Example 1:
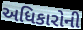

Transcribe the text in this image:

અધિકારોની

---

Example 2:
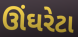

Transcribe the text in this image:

ઊંઘરેટા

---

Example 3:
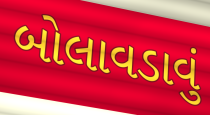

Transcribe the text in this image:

બોલાવડાવું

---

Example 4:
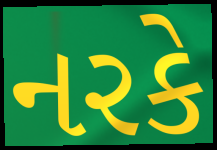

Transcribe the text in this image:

નરકે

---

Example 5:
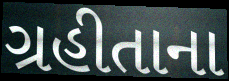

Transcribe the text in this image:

ગ્રહીતાના